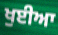
ਖੁਈਆ